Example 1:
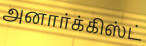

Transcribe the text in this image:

அனார்க்கிஸ்ட்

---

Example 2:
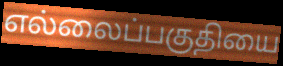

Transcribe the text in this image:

எல்லைப்பகுதியை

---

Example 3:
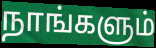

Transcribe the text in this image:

நாங்களும்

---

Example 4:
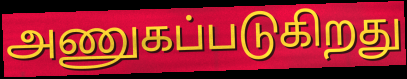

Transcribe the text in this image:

அணுகப்படுகிறது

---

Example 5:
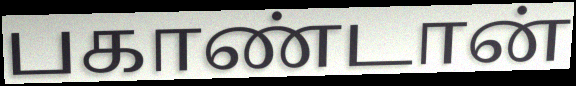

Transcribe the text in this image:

பகாண்டான்